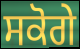
ਸਕੋਗੇ